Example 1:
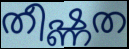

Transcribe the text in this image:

തീഷ്ണത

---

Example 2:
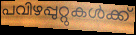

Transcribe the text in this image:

പവിഴപ്പുറ്റുകൾക്ക്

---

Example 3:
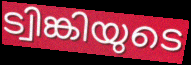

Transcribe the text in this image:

ട്വിങ്കിയുടെ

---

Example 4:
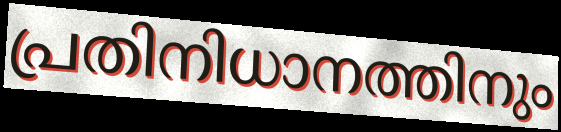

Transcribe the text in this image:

പ്രതിനിധാനത്തിനും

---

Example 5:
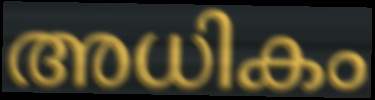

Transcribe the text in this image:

അധികം